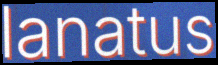
lanatus